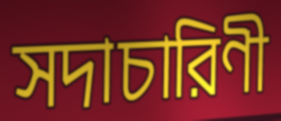
সদাচারিণী